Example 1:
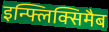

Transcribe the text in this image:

इन्फ्लिक्सिमैब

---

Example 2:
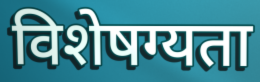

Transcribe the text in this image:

विशेषग्यता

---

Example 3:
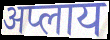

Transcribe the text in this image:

अप्लाय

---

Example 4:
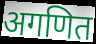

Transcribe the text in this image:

अगणित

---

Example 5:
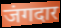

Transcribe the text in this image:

जंगदार